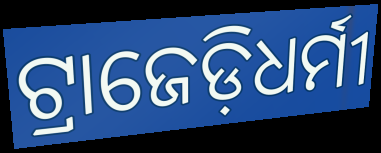
ଟ୍ରାଜେଡ଼ିଧର୍ମୀ